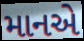
માનએ